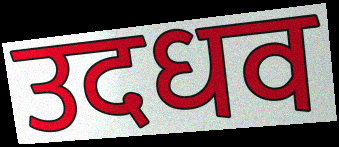
उदधव